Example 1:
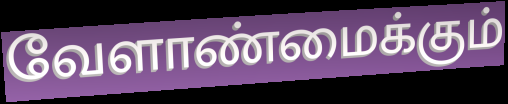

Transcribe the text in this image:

வேளாண்மைக்கும்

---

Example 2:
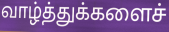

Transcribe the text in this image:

வாழ்த்துக்களைச்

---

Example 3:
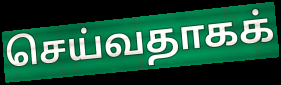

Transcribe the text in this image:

செய்வதாகக்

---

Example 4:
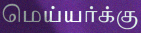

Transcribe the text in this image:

மெய்யர்க்கு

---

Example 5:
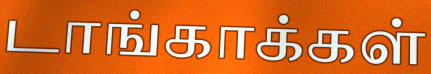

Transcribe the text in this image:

டாங்காக்கள்